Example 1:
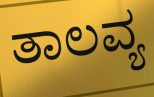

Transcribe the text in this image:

ತಾಲವ್ಯ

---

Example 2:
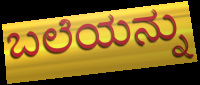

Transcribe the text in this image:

ಬಲೆಯನ್ನು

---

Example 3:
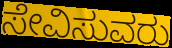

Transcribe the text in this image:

ಸೇವಿಸುವರು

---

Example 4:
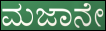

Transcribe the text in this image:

ಮಜಾನೇ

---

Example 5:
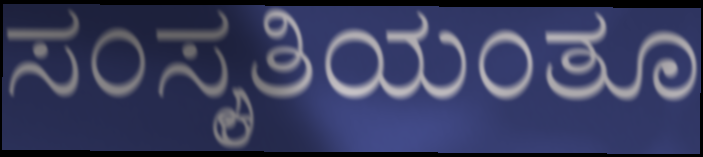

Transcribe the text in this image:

ಸಂಸ್ಕೃತಿಯಂತೂ